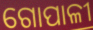
ଗୋପାଳୀ